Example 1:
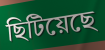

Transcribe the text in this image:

ছিটিয়েছে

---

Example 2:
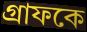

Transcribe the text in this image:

গ্রাফকে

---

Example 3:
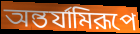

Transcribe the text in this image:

অন্তর্যামিরূপে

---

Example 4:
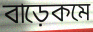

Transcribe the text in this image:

বাড়েকমে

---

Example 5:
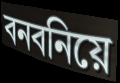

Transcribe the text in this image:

বনবনিয়ে